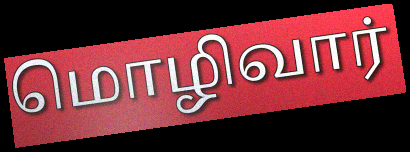
மொழிவார்